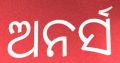
ଅନର୍ସ